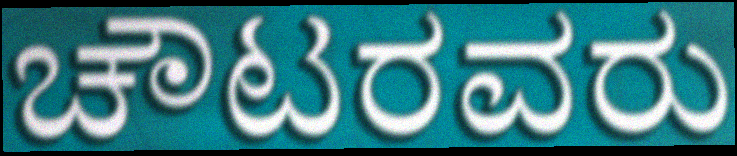
ಚೌಟರವರು